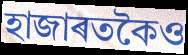
হাজাৰতকৈও